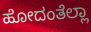
ಹೋದಂತೆಲ್ಲಾ